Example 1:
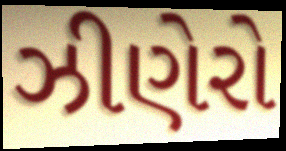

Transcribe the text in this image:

ઝીણેરો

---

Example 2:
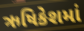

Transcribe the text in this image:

ઋષિકેશમાં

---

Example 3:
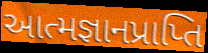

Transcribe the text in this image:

આત્મજ્ઞાનપ્રાપ્તિ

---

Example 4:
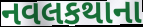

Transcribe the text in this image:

નવલકથાના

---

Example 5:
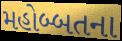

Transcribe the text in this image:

મહોબ્બતના